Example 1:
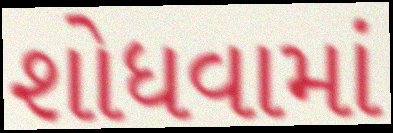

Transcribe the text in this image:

શોધવામાં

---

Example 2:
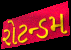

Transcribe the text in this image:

રોટન્ડમ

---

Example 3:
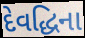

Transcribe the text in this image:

દેવદ્ધિના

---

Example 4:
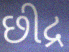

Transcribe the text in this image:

છીદ્ર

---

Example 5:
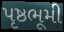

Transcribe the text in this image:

પૃષ્ઠભૂમી